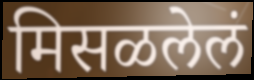
मिसळलेलं